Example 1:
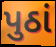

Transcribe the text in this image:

પુઠાં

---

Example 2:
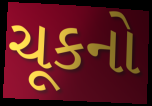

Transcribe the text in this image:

ચૂકનો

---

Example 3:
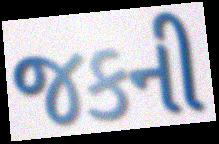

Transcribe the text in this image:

જકની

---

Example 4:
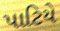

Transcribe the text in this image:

પાટિયે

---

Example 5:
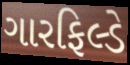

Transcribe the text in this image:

ગારફિલ્ડે